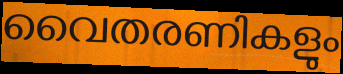
വൈതരണികളും